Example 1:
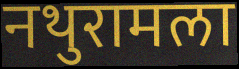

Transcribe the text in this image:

नथुरामला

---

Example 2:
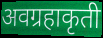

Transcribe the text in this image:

अवग्रहाकृती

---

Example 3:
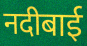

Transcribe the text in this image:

नदीबाई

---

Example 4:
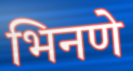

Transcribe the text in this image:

भिनणे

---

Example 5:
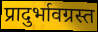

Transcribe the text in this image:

प्रादुर्भावग्रस्त